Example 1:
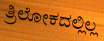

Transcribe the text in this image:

ತ್ರಿಲೋಕದಲ್ಲಿಲ್ಲ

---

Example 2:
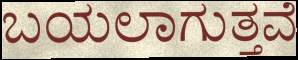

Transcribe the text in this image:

ಬಯಲಾಗುತ್ತವೆ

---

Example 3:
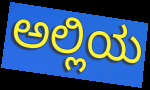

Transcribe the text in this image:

ಅಲ್ಲಿಯ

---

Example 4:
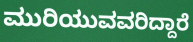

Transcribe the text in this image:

ಮುರಿಯುವವರಿದ್ದಾರೆ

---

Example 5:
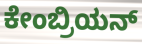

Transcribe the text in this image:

ಕೇಂಬ್ರಿಯನ್